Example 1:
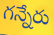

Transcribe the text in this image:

గన్నేరు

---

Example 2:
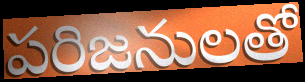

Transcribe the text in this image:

పరిజనులతో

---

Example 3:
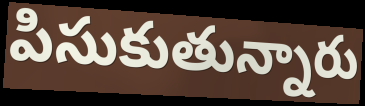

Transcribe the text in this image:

పిసుకుతున్నారు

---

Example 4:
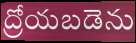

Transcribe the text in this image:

ద్రోయబడెను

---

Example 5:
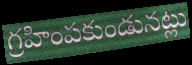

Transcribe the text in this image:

గ్రహింపకుండునట్లు